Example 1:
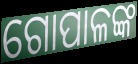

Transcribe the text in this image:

ଗୋପାଳଙ୍କ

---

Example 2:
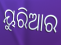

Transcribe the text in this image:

ୟୁରିଆର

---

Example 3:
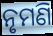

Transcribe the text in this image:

ନୃମଣି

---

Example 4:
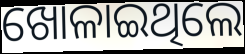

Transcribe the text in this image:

ଖୋଳାଇଥିଲେ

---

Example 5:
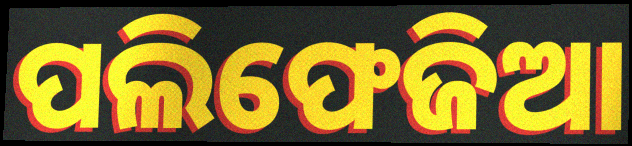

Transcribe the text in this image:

ପଲିଫେଜିଆ